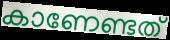
കാണേണ്ടത്